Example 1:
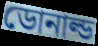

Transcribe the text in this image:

ডোনাল্ড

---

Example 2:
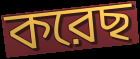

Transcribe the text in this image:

করেছ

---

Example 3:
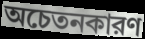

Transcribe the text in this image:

অচেতনকারণ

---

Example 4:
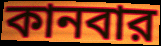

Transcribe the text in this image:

কানবার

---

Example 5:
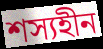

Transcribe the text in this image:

শস্যহীন